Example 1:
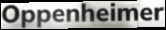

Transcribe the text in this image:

Oppenheimer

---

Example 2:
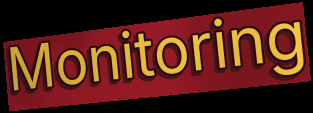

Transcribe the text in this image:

Monitoring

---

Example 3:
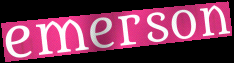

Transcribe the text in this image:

emerson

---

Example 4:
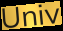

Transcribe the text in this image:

Univ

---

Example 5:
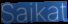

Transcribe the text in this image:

Saikat